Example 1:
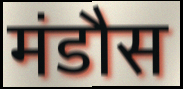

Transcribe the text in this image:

मंडौस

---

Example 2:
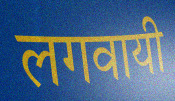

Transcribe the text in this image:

लगवायी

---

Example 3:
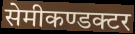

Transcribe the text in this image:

सेमीकण्डक्टर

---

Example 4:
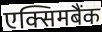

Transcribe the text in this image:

एक्सिमबैंक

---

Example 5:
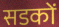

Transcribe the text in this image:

सडकों